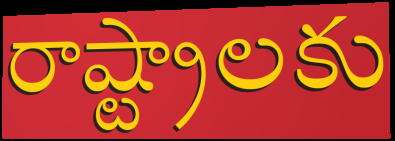
రాష్ట్రాలకు